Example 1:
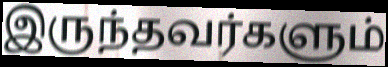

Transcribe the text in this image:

இருந்தவர்களும்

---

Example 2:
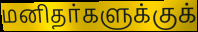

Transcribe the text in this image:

மனிதர்களுக்குக்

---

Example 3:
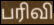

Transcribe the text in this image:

பரிவி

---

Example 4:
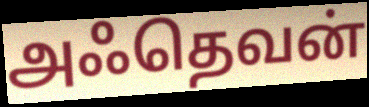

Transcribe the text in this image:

அஃதெவன்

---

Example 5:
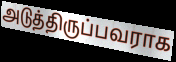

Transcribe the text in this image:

அடுத்திருப்பவராக